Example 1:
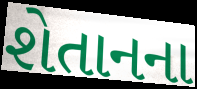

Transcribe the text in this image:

શેતાનના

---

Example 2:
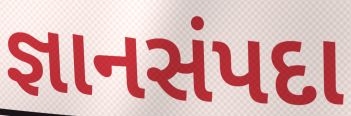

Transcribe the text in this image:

જ્ઞાનસંપદા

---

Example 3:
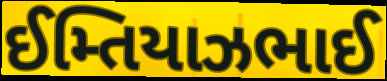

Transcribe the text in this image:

ઈમ્તિયાઝભાઈ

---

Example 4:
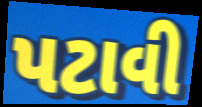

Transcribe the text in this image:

પટાવી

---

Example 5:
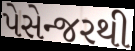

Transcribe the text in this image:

પેસેન્જરથી